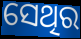
ସେଥିର